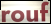
rouf